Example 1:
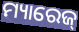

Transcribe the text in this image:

ମ୍ୟାରେଜ୍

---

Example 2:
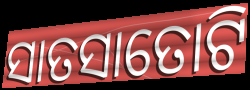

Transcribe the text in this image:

ସାତସାତୋଟି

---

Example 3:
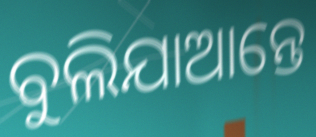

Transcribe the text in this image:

ବୁଲିଯାଆନ୍ତେ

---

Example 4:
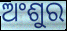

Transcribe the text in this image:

ଅଂଶୁର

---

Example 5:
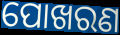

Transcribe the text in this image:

ପୋଖରଣ